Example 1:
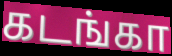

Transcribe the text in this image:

கடங்கா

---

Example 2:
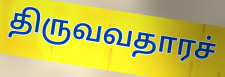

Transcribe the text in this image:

திருவவதாரச்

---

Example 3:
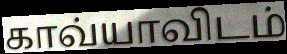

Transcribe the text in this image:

காவ்யாவிடம்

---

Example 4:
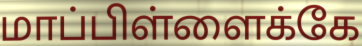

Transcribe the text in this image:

மாப்பிள்ளைக்கே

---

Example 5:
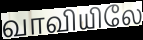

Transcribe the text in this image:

வாவியிலே